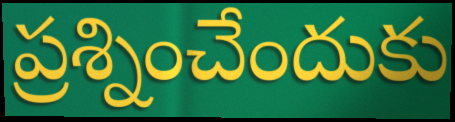
ప్రశ్నించేందుకు